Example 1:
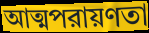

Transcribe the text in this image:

আত্মপরায়ণতা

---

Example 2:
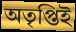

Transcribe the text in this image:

অতৃপ্তিই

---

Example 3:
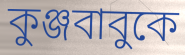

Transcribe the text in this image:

কুঞ্জবাবুকে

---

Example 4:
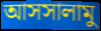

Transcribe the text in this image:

আসসালামু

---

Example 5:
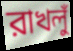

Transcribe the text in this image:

রাখলুঁ